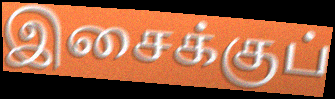
இசைக்குப்